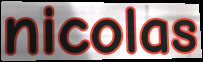
nicolas